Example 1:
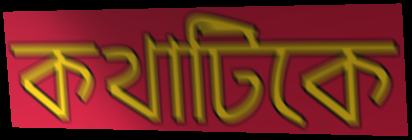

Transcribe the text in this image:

কথাটিকে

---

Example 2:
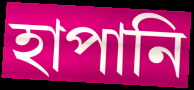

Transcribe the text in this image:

হাপানি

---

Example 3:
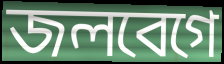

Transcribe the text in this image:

জলবেগে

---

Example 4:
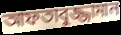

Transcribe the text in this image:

আফতাবুজ্জামান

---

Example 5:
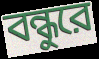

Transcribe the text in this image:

বন্ধুরে